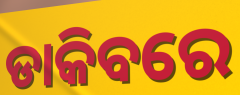
ଡାକିବରେ